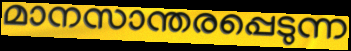
മാനസാന്തരപ്പെടുന്ന